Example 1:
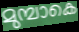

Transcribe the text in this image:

മുമ്പാകെ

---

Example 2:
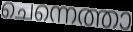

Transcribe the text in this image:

ചെന്നെത്താ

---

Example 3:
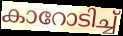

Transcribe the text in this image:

കാറോടിച്ച്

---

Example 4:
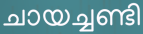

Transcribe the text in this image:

ചായച്ചണ്ടി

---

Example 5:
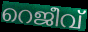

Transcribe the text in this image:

റെജീവ്